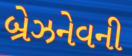
બ્રેઝનેવની